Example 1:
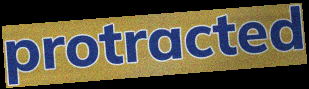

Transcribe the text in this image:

protracted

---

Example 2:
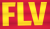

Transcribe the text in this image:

FLV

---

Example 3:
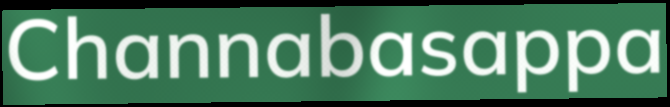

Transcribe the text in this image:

Channabasappa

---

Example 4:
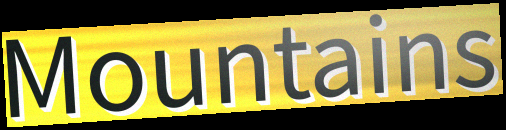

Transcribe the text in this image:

Mountains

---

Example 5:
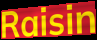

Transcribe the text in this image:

Raisin